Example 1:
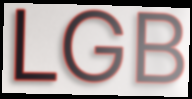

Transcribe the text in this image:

LGB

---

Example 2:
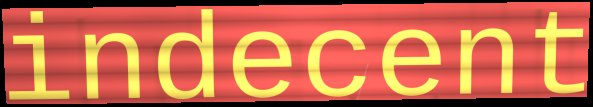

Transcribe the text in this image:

indecent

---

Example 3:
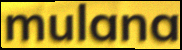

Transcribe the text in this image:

mulana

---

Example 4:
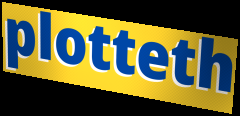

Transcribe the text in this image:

plotteth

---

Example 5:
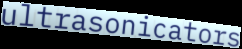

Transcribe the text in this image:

ultrasonicators